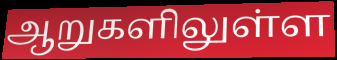
ஆறுகளிலுள்ள